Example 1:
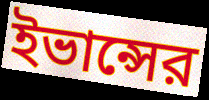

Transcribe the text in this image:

ইভান্সের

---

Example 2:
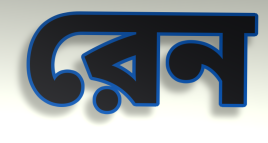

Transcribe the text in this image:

রেন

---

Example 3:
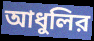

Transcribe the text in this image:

আধুলির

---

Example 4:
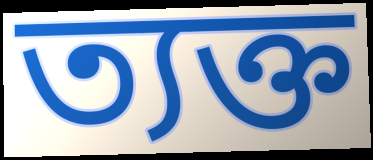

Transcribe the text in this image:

ত্যক্ত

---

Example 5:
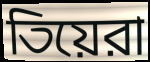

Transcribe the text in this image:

তিয়েরা